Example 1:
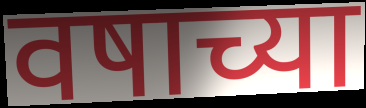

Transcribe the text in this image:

वषाच्या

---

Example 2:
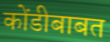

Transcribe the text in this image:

कोंडीबाबत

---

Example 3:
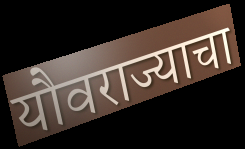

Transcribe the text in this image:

यौवराज्याचा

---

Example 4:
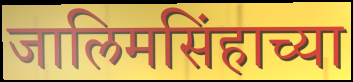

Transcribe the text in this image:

जालिमसिंहाच्या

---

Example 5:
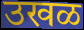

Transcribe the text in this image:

उखळ